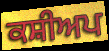
ਕਸ਼ੀਅਪ